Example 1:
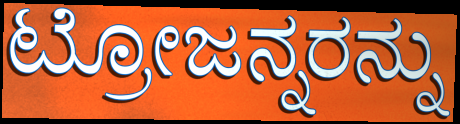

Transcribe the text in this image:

ಟ್ರೋಜನ್ನರನ್ನು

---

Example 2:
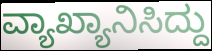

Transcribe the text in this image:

ವ್ಯಾಖ್ಯಾನಿಸಿದ್ದು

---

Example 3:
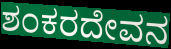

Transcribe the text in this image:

ಶಂಕರದೇವನ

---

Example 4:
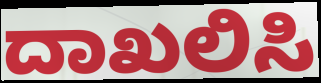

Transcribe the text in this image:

ದಾಖಲಿಸಿ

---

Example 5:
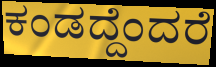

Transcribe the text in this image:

ಕಂಡದ್ದೆಂದರೆ